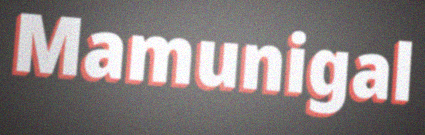
Mamunigal